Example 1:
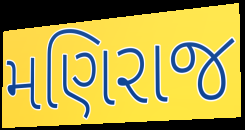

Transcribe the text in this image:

મણિરાજ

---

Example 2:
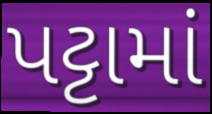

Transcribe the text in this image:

પટ્ટામાં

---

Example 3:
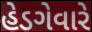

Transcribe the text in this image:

હેડગેવારે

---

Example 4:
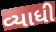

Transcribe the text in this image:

વ્યાધી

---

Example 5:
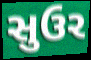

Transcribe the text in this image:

સુઉર